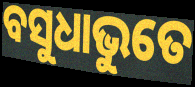
ବସୁଧାଭୁତେ